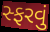
સ્ફરવું